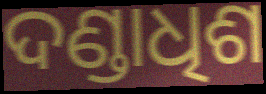
ଦଣ୍ଡାଧିଶ